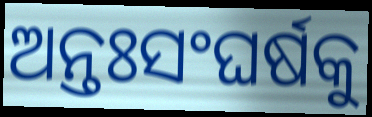
ଅନ୍ତଃସଂଘର୍ଷକୁ